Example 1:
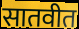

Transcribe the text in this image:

सातवीत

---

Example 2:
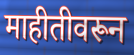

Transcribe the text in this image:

माहीतीवरून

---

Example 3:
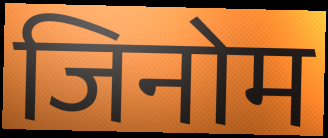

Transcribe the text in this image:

जिनोम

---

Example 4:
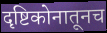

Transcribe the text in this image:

दृष्टिकोनातूनच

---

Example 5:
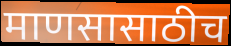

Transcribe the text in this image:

माणसासाठीच